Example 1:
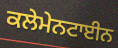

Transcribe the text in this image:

ਕਲੇਮੇਨਟਾਈਨ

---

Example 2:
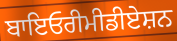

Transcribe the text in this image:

ਬਾਇਓਰੀਮੀਡੀਏਸ਼ਨ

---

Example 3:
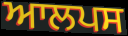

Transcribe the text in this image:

ਆਲਪਸ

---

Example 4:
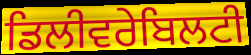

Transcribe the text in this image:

ਡਿਲੀਵਰੇਬਿਲਟੀ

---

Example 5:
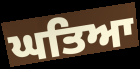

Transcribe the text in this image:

ਘਤਿਆ